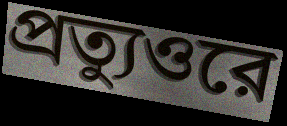
প্রত্যুওরে